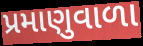
પ્રમાણુવાળા